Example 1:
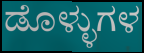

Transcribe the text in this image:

ಡೊಳ್ಳುಗಳ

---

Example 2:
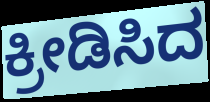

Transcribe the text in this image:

ಕ್ರೀಡಿಸಿದ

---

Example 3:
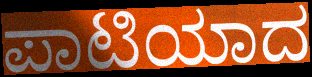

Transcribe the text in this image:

ಪಾಟಿಯಾದ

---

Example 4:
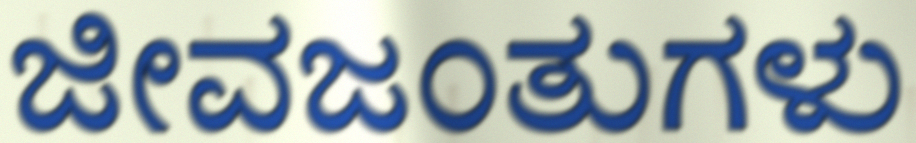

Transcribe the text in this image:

ಜೀವಜಂತುಗಳು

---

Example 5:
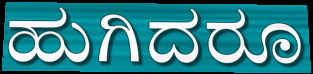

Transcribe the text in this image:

ಹುಗಿದರೂ